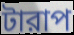
টারাপ